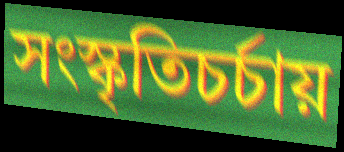
সংস্কৃতিচর্চায়